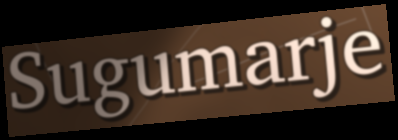
Sugumarje